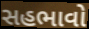
સહભાવો